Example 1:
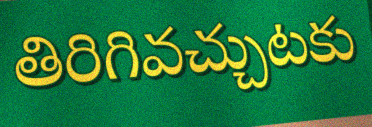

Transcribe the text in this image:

తిరిగివచ్చుటకు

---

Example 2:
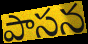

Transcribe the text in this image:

పాసన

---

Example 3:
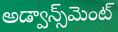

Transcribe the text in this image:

అడ్వాన్స్‌మెంట్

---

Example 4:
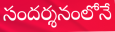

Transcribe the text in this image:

సందర్శనంలోనే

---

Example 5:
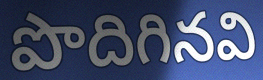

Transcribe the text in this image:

పొదిగినవి